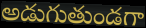
అడుగుతుండగా